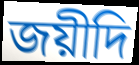
জয়ীদি